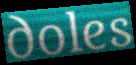
doles